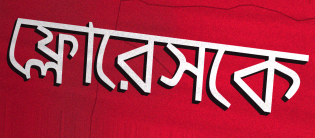
ফ্লোরেসকে